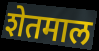
शेतमाल